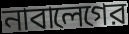
নাবালেগের